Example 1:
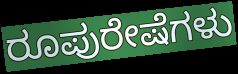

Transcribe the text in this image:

ರೂಪುರೇಷೆಗಳು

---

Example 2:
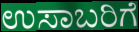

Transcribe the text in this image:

ಉಸಾಬರಿಗೆ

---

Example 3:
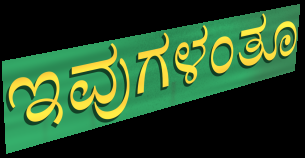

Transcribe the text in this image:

ಇವುಗಳಂತೂ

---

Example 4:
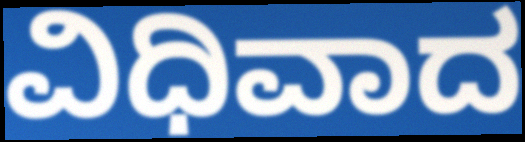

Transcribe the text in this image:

ವಿಧಿವಾದ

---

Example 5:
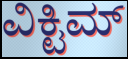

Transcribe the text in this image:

ವಿಕ್ಟಿಮ್